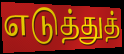
எடுத்துத்